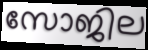
സോജില